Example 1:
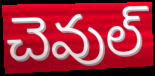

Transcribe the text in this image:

చెవుల్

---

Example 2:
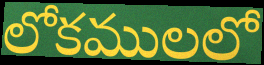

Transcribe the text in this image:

లోకములలో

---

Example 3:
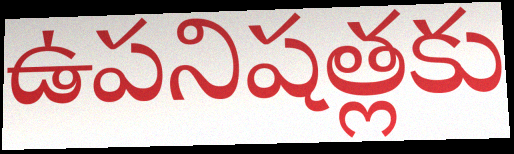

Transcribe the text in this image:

ఉపనిషత్లకు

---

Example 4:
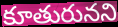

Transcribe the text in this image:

కూతురునని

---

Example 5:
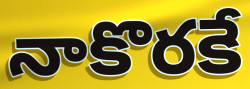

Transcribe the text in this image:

నాకొరకే